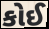
કોઈ